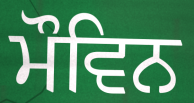
ਮੌਵਿਨ